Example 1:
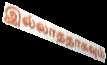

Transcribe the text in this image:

இல்லாததாகவும்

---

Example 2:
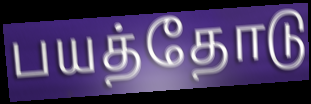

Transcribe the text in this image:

பயத்தோடு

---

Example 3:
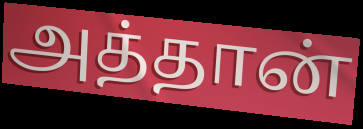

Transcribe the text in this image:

அத்தான்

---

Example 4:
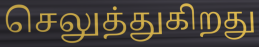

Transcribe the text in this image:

செலுத்துகிறது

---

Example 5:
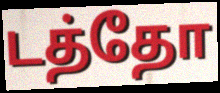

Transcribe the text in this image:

டத்தோ